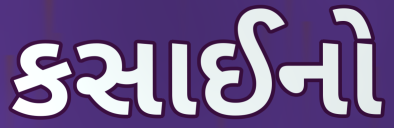
કસાઈનો